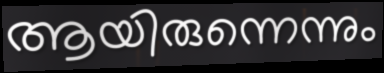
ആയിരുന്നെന്നും